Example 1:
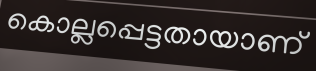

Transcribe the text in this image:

കൊല്ലപ്പെട്ടതായാണ്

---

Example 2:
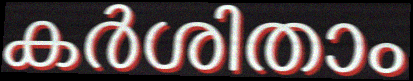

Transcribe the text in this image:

കർശിതാം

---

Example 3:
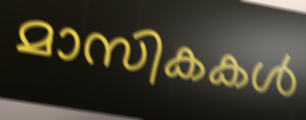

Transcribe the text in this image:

മാസികകൾ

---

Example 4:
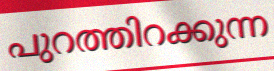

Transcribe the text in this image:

പുറത്തിറക്കുന്ന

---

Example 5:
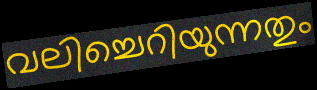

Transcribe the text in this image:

വലിച്ചെറിയുന്നതും